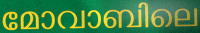
മോവാബിലെ